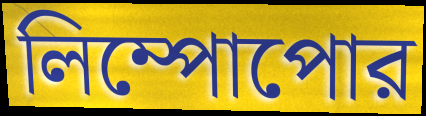
লিম্পোপোর